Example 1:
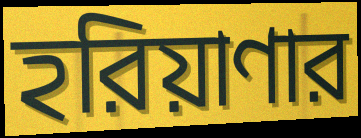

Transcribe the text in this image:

হরিয়াণার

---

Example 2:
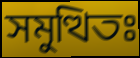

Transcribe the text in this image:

সমুত্থিতঃ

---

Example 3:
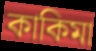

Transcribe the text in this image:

কাকিমা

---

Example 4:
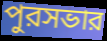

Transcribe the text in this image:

পুরসভার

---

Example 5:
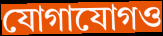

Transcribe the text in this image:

যোগাযোগও